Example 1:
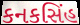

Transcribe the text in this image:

કનકસિંહ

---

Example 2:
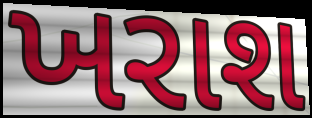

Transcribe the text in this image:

ખરાશ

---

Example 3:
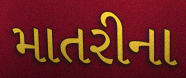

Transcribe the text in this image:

માતરીના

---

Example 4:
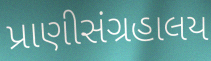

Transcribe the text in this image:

પ્રાણીસંગ્રહાલય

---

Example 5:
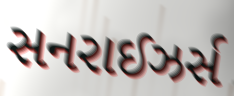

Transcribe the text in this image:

સનરાઈઝર્સ